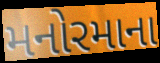
મનોરમાના